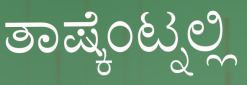
ತಾಷ್ಕೆಂಟ್ನಲ್ಲಿ